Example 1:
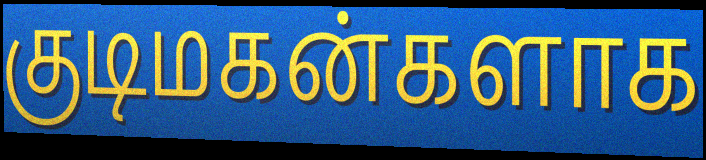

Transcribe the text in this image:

குடிமகன்களாக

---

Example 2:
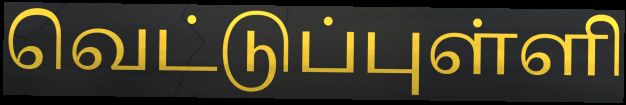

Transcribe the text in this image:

வெட்டுப்புள்ளி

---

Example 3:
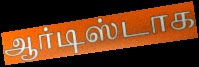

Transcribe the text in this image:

ஆர்டிஸ்டாக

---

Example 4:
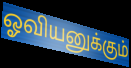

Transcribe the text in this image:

ஓவியனுக்கும்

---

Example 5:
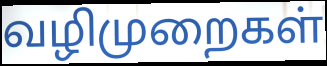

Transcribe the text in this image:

வழிமுறைகள்